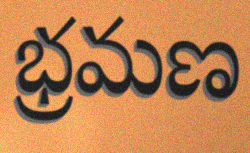
భ్రమణ